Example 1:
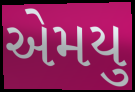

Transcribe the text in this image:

એમયુ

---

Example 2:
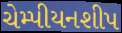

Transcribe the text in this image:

ચેમ્પીયનશીપ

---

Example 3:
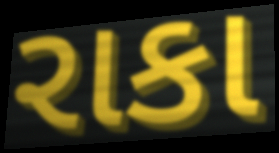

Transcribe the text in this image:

રાકા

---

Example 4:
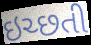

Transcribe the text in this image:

ઇચ્છતી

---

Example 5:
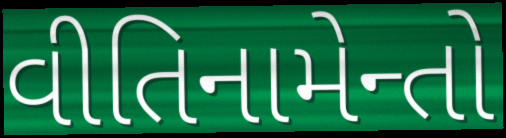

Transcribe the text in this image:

વીતિનામેન્તો